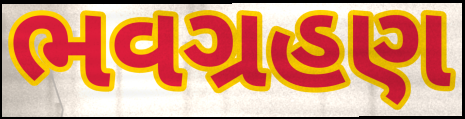
ભવગ્રહણ